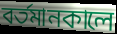
বর্তমানকালে